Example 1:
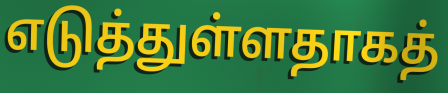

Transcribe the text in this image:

எடுத்துள்ளதாகத்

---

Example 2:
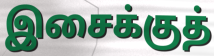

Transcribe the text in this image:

இசைக்குத்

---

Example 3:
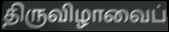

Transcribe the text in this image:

திருவிழாவைப்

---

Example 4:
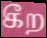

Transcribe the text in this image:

கீற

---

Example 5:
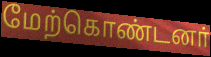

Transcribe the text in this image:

மேற்கொண்டனர்